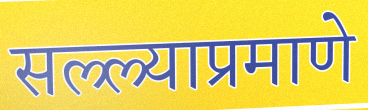
सल्ल्याप्रमाणे